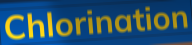
Chlorination